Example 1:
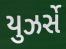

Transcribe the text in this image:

યુઝર્સે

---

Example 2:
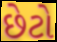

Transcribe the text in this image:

છેટો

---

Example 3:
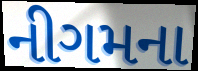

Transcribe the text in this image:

નીગમના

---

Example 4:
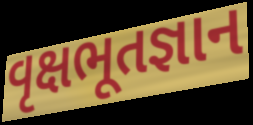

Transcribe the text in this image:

વૃક્ષભૂતજ્ઞાન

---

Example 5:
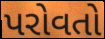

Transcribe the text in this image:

પરોવતો